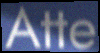
Atte